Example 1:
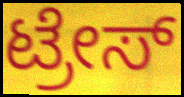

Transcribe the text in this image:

ಟ್ರೇಸ್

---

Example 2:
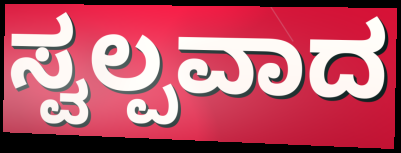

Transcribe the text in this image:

ಸ್ವಲ್ಪವಾದ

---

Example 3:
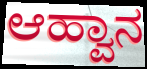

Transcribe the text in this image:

ಆಹ್ವಾನ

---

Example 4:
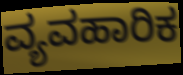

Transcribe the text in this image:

ವ್ಯವಹಾರಿಕ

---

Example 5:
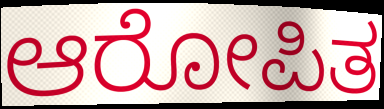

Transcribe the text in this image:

ಆರೋಪಿತ